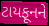
ટાયફૂનને